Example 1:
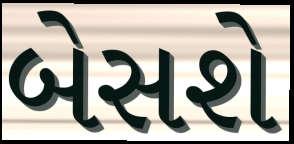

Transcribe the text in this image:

બેસશે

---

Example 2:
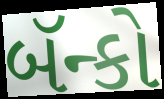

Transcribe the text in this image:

બૅન્કો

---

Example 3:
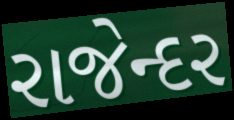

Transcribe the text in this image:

રાજેન્દર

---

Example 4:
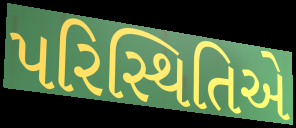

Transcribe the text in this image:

પરિસ્થિતિએ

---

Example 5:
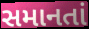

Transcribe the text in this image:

સમાનતાં